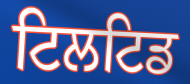
ਟਿਲਟਿਡ